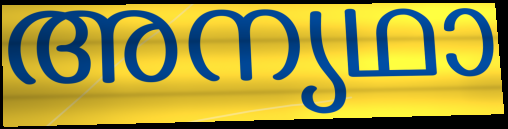
അന്യഥാ